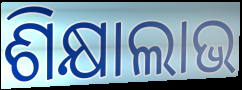
ଶିକ୍ଷାଲାଭ